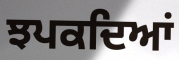
ਝਪਕਦਿਆਂ